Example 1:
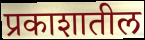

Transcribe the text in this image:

प्रकाशातील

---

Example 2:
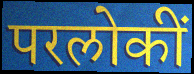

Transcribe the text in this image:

परलोकीं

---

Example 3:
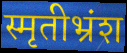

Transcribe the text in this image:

स्मृतीभ्रंश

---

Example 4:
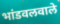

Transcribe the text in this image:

भांडवलवाले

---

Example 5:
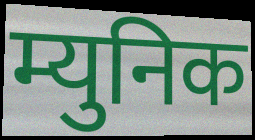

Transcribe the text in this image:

म्युनिक